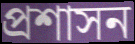
প্রশাসন